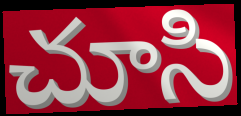
చూసి